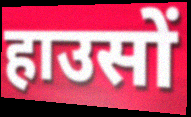
हाउसों